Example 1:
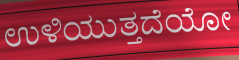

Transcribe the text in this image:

ಉಳಿಯುತ್ತದೆಯೋ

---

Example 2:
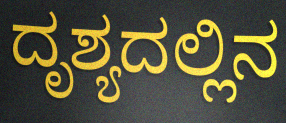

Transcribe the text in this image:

ದೃಶ್ಯದಲ್ಲಿನ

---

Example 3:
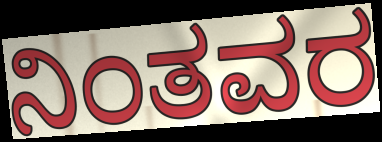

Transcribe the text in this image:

ನಿಂತವರ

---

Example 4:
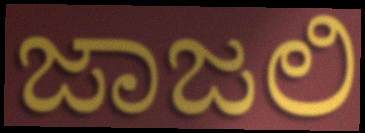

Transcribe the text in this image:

ಜಾಜಲಿ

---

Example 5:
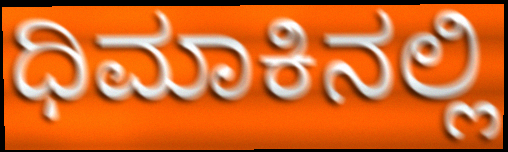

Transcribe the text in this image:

ಧಿಮಾಕಿನಲ್ಲಿ